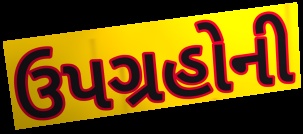
ઉપગ્રહોની